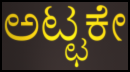
ಅಟ್ಟಕೇ